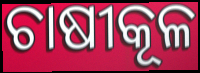
ଚାଷୀକୂଳ